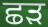
ਛੜ